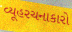
વ્યૂહરચનાકારો